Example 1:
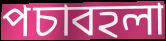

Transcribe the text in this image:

পচাবহলা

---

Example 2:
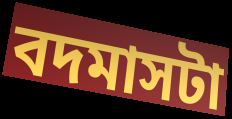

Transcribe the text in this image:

বদমাসটা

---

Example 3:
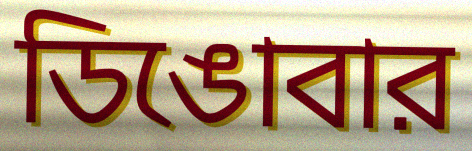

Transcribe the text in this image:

ডিঙোবার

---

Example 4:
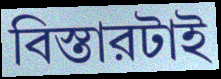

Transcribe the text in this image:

বিস্তারটাই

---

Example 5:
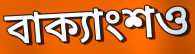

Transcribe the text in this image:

বাক্যাংশও